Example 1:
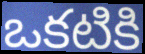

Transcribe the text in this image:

ఒకటికి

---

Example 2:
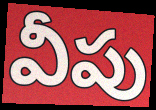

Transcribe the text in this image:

వీపు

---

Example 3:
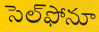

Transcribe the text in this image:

సెల్‌ఫోనూ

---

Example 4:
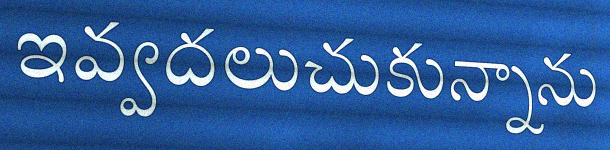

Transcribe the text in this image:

ఇవ్వదలుచుకున్నాను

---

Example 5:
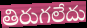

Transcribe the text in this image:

తిరుగలేదు